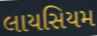
લાયસિયમ